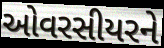
ઓવરસીયરને